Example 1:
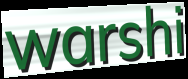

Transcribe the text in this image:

warshi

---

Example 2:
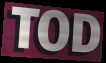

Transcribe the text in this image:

TOD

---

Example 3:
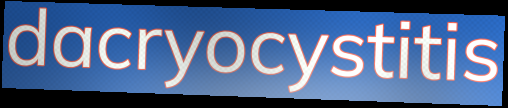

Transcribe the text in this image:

dacryocystitis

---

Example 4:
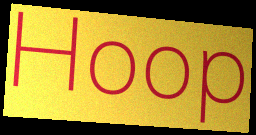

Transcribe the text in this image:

Hoop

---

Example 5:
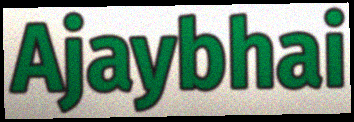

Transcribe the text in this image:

Ajaybhai